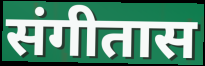
संगीतास